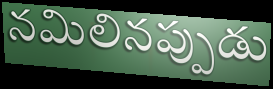
నమిలినప్పుడు